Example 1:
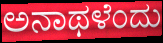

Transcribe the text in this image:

ಅನಾಥಳೆಂದು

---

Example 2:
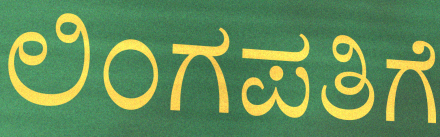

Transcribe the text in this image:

ಲಿಂಗಪತಿಗೆ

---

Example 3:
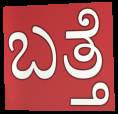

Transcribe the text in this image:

ಬತ್ತೆ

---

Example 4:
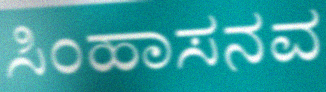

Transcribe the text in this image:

ಸಿಂಹಾಸನವ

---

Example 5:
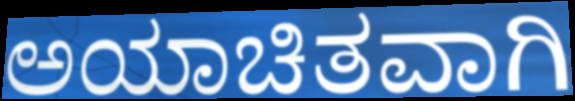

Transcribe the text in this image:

ಅಯಾಚಿತವಾಗಿ